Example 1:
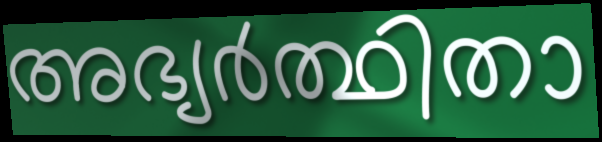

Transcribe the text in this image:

അഭ്യർത്ഥിതാ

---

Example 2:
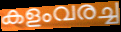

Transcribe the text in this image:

കളംവരച്ച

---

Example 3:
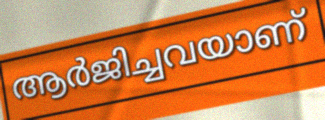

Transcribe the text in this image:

ആർജിച്ചവയാണ്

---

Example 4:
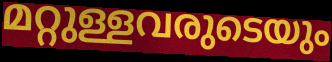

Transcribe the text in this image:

മറ്റുള്ളവരുടെയും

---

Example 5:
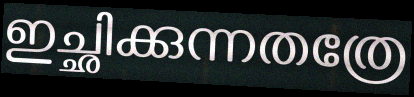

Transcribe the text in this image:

ഇച്ഛിക്കുന്നതത്രേ